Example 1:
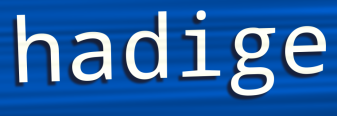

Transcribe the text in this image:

hadige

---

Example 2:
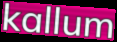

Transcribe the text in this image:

kallum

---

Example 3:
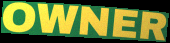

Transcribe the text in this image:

OWNER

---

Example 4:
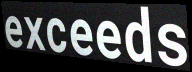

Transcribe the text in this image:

exceeds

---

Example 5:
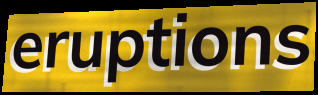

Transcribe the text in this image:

eruptions